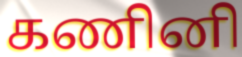
கணினி